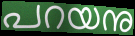
പറയനു